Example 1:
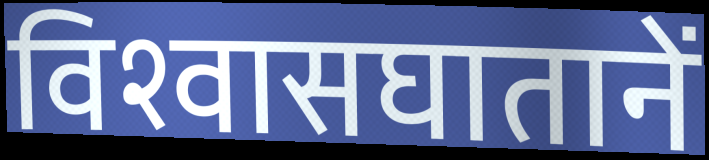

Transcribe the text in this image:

विश्वासघातानें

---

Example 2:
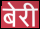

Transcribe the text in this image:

बेरी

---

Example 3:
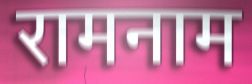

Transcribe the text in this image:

रामनाम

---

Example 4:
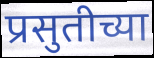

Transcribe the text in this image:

प्रसुतीच्या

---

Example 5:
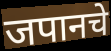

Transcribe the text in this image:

जपानचे